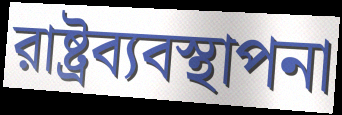
রাষ্ট্রব্যবস্থাপনা